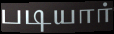
படியார்